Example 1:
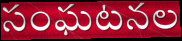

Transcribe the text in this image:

సంఘటనల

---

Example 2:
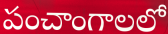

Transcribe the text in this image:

పంచాంగాలలో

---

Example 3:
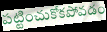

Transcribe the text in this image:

పట్టించుకోకపోవడం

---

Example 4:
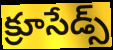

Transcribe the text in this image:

క్రూసేడ్స్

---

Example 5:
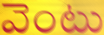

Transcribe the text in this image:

వెంటు